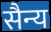
सैन्‍य